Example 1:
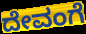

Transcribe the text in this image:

ದೇವಂಗೆ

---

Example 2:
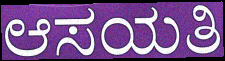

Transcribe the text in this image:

ಆಸಯತಿ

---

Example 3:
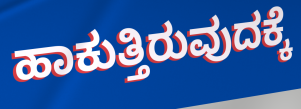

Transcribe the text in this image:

ಹಾಕುತ್ತಿರುವುದಕ್ಕೆ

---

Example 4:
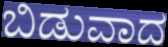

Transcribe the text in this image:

ಬಿಡುವಾದ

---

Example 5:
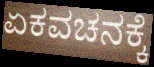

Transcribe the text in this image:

ಏಕವಚನಕ್ಕೆ